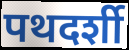
पथदर्शी